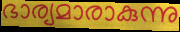
ഭാര്യമാരാകുന്നു